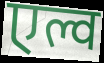
एल्व